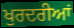
ਖੁਰਦਰੀਆਂ